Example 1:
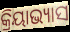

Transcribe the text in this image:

କ୍ରିୟାଭ୍ୟାସ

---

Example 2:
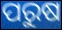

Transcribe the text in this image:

ପରୁଷ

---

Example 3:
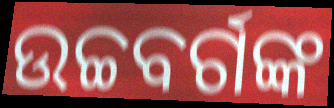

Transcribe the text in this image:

ଉଚ୍ଚବର୍ଗଙ୍କ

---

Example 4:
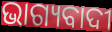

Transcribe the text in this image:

ଭାଗ୍ୟବାଦୀ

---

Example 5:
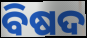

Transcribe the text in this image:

ବିଷଦ